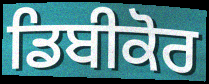
ਡਿਬੀਕੋਰ